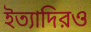
ইত্যাদিরও